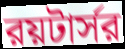
রয়টার্সর